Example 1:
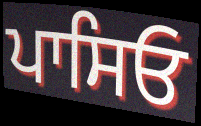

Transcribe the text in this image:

ਪਾਸਿਓ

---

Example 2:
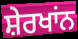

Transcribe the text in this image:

ਸ਼ੇਰਖਾਂਨ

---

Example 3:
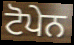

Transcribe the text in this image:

ਟੋਪੇਨ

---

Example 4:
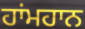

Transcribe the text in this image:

ਹਾਂਮਹਾਨ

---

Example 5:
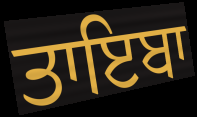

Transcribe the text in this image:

ਤਾਇਬਾ